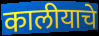
कालीयाचे